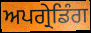
ਅਪਗ੍ਰੇਡਿੰਗ